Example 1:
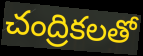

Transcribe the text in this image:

చంద్రికలతో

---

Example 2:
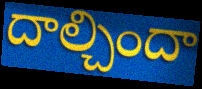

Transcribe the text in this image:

దాల్చిందా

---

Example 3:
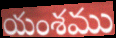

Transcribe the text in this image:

యంశము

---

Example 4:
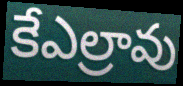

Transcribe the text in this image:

కేఎల్రావు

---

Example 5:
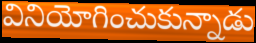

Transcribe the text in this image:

వినియోగించుకున్నాడు